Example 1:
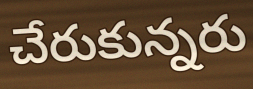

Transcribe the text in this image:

చేరుకున్నరు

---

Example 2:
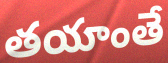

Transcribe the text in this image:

తయాంతే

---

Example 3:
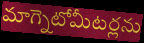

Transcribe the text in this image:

మాగ్నెటోమీటర్లను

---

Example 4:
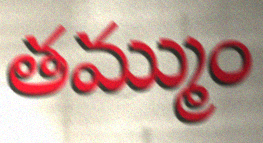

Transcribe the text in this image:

తమ్ముం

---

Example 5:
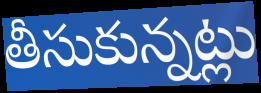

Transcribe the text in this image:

తీసుకున్నట్లు